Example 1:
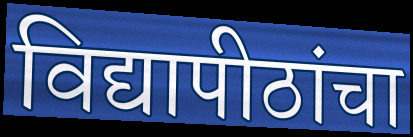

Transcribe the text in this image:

विद्यापीठांचा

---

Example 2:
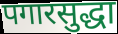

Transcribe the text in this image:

पगारसुद्धा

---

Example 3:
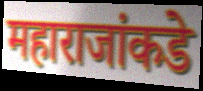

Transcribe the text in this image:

महाराजांकडे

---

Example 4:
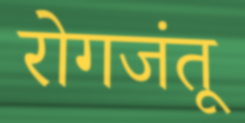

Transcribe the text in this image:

रोगजंतू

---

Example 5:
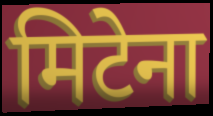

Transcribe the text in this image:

मिटेना